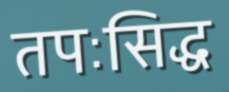
तपःसिद्ध